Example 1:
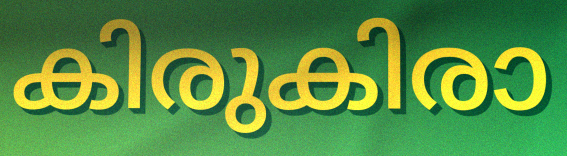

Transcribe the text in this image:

കിരുകിരാ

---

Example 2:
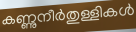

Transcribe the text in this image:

കണ്ണുനീർതുള്ളികൾ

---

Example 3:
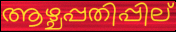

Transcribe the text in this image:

ആഴ്ചപ്പതിപ്പില്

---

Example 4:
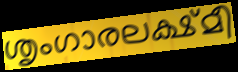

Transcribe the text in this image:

ശൃംഗാരലക്ഷ്മീ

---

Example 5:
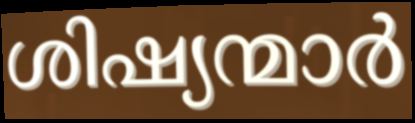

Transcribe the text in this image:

ശിഷ്യന്മാർ